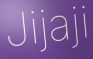
Jijaji